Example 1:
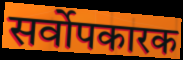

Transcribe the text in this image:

सर्वोपकारक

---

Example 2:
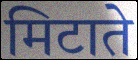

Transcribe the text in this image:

मिटाते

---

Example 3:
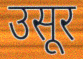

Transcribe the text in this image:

उसूर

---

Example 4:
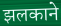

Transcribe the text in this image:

झलकाने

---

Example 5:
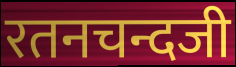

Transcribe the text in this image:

रतनचन्दजी